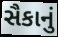
સૈકાનું